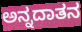
ಅನ್ನದಾತನ